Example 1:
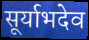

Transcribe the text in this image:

सूर्याभदेव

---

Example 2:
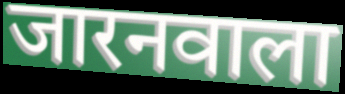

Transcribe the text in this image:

जारनवाला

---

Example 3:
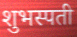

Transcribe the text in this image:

शुभस्पती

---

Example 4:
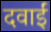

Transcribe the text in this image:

दवाईं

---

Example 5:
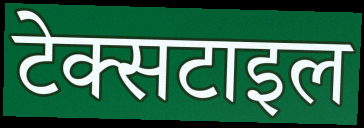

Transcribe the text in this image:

टेक्सटाइल